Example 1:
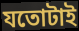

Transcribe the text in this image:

যতোটাই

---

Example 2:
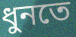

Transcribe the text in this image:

ধুনতে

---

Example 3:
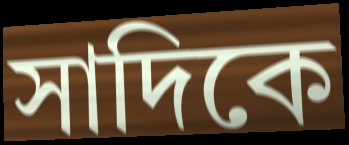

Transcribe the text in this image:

সাদিকে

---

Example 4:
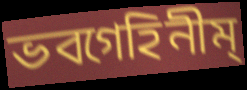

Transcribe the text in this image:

ভবগেহিনীম্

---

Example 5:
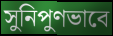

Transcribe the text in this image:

সুনিপুণভাবে